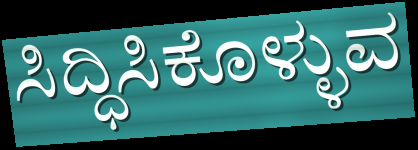
ಸಿದ್ಧಿಸಿಕೊಳ್ಳುವ